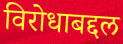
विरोधाबद्दल